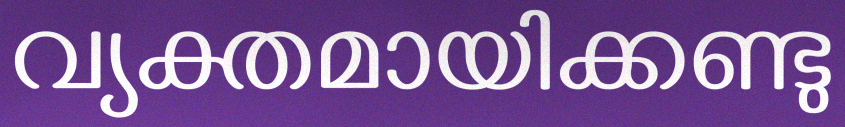
വ്യക്തമായിക്കണ്ടു